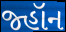
જ્હૉન